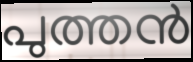
പുത്തൻ